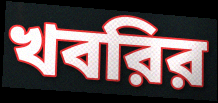
খবরির